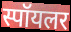
स्पॉयलर